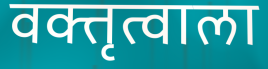
वक्तृत्वाला